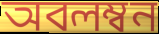
অবলম্বন